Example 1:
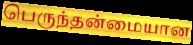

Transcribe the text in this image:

பெருந்தன்மையான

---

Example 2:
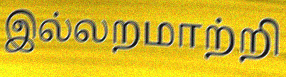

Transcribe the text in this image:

இல்லறமாற்றி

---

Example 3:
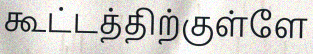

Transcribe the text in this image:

கூட்டத்திற்குள்ளே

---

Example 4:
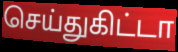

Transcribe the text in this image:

செய்துகிட்டா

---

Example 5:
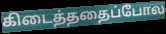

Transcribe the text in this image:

கிடைத்ததைப்போல